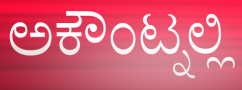
ಅಕೌಂಟ್ನಲ್ಲಿ